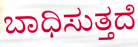
ಬಾಧಿಸುತ್ತದೆ